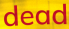
dead